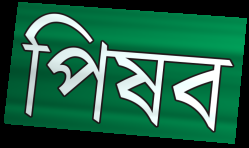
পিষব